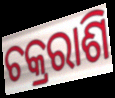
ଚକ୍ରରାଶି